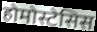
होमोस्टेसिस